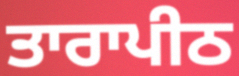
ਤਾਰਾਪੀਠ